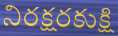
నిరక్షరకుక్షి